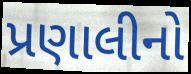
પ્રણાલીનો